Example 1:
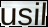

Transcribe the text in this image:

usil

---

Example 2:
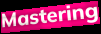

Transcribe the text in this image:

Mastering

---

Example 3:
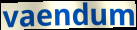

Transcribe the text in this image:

vaendum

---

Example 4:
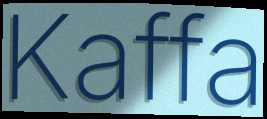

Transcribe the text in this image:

Kaffa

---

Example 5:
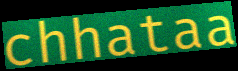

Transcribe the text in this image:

chhataa